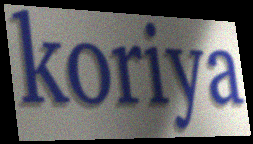
koriya